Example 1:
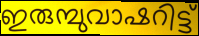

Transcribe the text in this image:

ഇരുമ്പുവാഷറിട്ട്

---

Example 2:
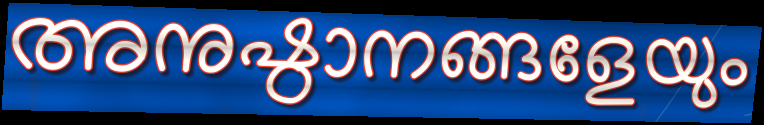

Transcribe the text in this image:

അനുഷ്ഠാനങ്ങളേയും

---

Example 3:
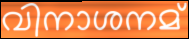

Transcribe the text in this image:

വിനാശനമ്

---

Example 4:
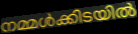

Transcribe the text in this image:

നമ്മൾക്കിടയിൽ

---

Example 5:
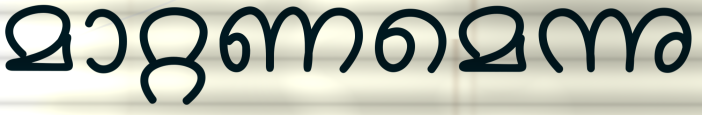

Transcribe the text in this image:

മാറ്റണമെന്നു